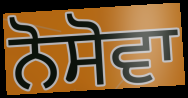
ਨੋਸੋਵਾ